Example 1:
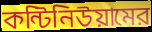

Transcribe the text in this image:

কন্টিনিউয়ামের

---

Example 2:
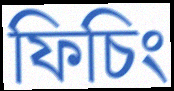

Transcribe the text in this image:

ফিচিং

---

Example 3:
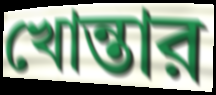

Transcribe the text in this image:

খোন্তার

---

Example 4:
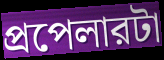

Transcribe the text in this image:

প্রপেলারটা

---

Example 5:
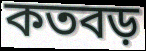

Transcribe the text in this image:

কতবড়